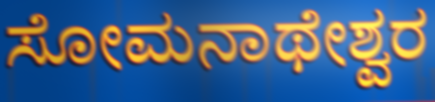
ಸೋಮನಾಥೇಶ್ವರ